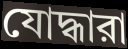
যোদ্ধারা